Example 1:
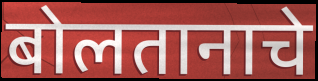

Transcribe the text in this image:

बोलतानाचे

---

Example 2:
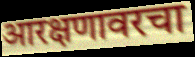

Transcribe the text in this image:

आरक्षणावरचा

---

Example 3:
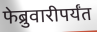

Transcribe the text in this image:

फेब्रुवारीपर्यंत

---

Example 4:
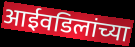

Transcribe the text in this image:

आईवडिलांच्या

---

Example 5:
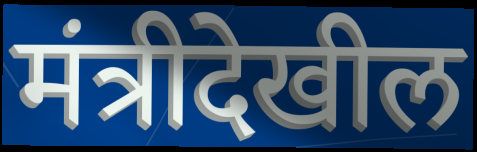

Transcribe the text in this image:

मंत्रीदेखील